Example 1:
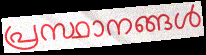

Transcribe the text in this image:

പ്രസ്ഥാനങ്ങൾ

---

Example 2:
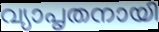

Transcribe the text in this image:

വ്യാപൃതനായി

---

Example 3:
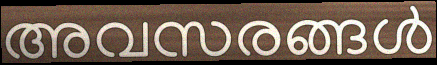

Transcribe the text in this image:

അവസരങ്ങൾ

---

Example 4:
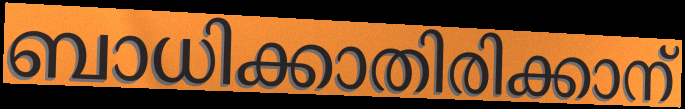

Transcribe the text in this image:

ബാധിക്കാതിരിക്കാന്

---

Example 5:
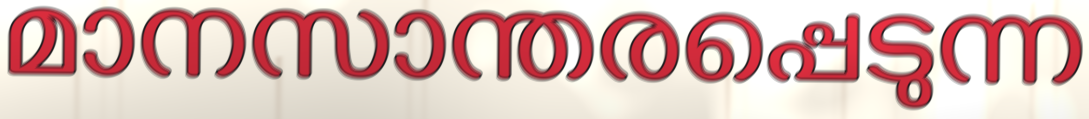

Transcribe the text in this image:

മാനസാന്തരപ്പെടുന്ന